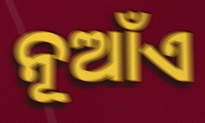
ନୂଆଁଏ